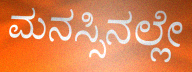
ಮನಸ್ಸಿನಲ್ಲೇ